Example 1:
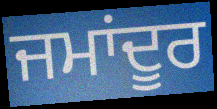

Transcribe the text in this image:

ਜਮਾਂਦੂਰ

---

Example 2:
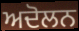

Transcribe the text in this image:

ਅਦੋਲਨ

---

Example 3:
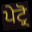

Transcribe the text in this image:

ਪੇਟ੍ਰੋ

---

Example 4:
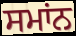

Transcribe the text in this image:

ਸਮਾਂਨ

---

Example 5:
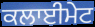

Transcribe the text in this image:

ਕਲਾਈਮੇਟ